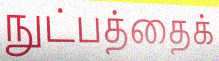
நுட்பத்தைக்